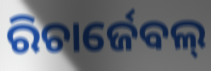
ରିଚାର୍ଜେବଲ୍